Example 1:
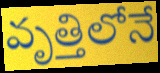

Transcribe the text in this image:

వృత్తిలోనే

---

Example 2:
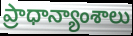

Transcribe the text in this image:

ప్రాధాన్యాంశాలు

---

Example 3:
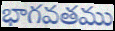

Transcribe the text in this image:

భాగవతము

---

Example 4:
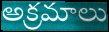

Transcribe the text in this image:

అక్రమాలు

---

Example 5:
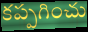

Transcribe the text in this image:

కప్పగించు